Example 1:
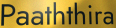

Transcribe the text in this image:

Paaththira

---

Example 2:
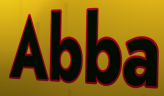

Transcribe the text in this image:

Abba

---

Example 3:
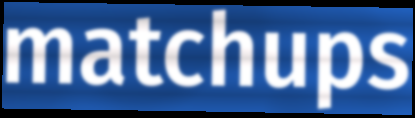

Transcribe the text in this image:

matchups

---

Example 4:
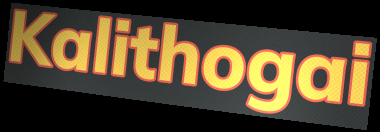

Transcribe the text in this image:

Kalithogai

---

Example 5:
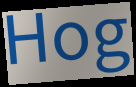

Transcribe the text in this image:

Hog